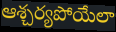
ఆశ్చర్యపోయేలా